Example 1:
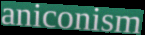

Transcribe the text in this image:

aniconism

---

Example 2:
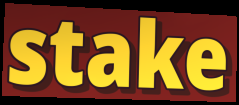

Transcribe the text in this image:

stake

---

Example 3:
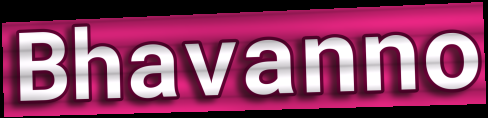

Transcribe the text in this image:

Bhavanno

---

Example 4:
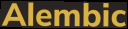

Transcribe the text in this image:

Alembic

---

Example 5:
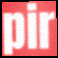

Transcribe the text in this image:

pir